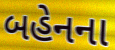
બહેનના